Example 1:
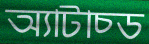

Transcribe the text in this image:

অ্যাটাচ্ড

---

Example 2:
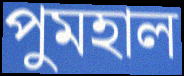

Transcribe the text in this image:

পুমহাল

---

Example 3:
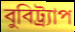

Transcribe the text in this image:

বুবিট্র্যাপ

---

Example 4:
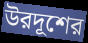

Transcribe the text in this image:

উরদূশের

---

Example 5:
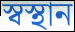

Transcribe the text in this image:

স্বস্থান